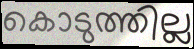
കൊടുത്തില്ല